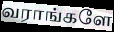
வராங்களே